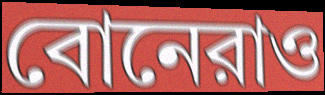
বোনেরাও